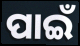
ପାଇଁ